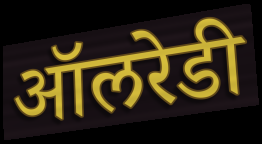
ऑलरेडी